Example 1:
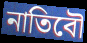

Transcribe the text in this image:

নাতিবৌ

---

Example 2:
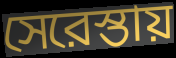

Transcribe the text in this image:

সেরেস্তায়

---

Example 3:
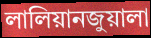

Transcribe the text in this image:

লালিয়ানজুয়ালা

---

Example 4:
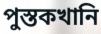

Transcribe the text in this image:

পুস্তকখানি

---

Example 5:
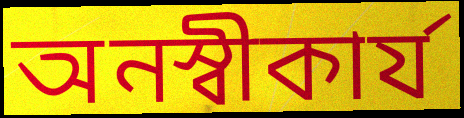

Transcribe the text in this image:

অনস্বীকার্য